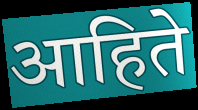
आहिते